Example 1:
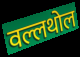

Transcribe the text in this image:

वल्लथोल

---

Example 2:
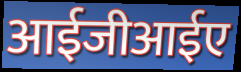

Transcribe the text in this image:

आईजीआईए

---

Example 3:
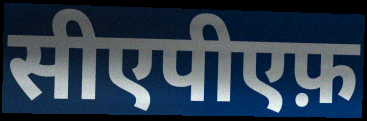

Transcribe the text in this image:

सीएपीएफ़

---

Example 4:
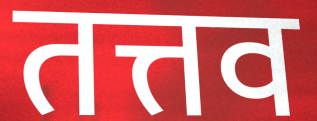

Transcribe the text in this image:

तत्तव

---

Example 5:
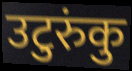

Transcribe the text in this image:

उटुरुंकु